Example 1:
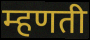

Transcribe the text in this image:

म्हणती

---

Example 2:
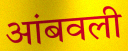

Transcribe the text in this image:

आंबवली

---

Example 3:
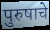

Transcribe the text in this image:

पुरुषाचे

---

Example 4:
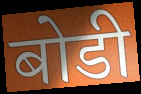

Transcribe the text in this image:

बोडी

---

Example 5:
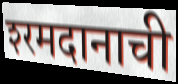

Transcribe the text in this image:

श्रमदानाची